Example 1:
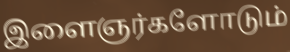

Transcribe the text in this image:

இளைஞர்களோடும்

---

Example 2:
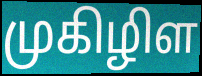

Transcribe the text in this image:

முகிழிள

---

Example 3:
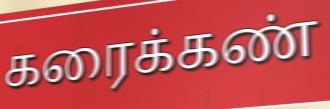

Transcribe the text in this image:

கரைக்கண்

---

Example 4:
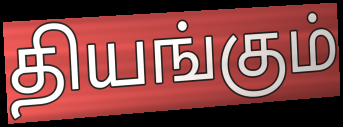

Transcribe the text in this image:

தியங்கும்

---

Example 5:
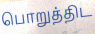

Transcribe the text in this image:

பொறுத்திட